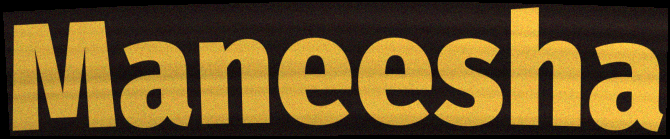
Maneesha